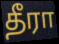
தீரா